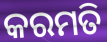
କରମତି